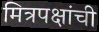
मित्रपक्षांची